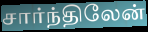
சார்ந்திலேன்